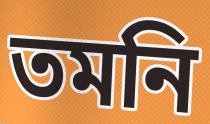
তমনি